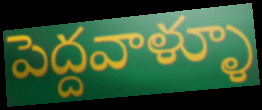
పెద్దవాళ్ళూ